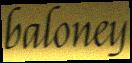
baloney